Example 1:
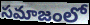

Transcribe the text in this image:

సమాజంలో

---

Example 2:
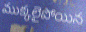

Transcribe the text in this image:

ముక్కలైపోయిన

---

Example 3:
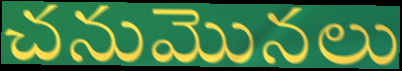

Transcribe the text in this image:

చనుమొనలు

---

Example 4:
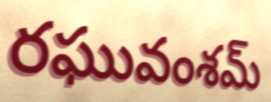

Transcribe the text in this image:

రఘువంశమ్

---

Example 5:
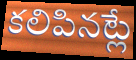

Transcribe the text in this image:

కలిపినట్లే